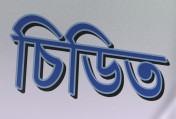
চিডিত